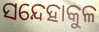
ସନ୍ଦେହାକୁଳ